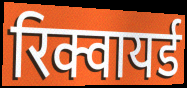
रिक्वायर्ड